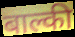
बाल्की